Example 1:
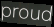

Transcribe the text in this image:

proud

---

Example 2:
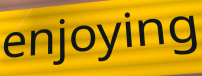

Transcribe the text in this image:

enjoying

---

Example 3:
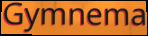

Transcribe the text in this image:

Gymnema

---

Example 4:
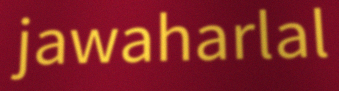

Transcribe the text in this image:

jawaharlal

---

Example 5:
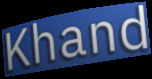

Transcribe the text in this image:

Khand